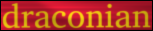
draconian